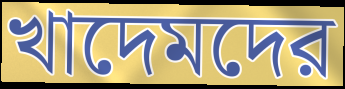
খাদেমদের